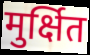
मुर्क्षित